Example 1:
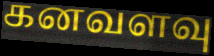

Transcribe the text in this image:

கனவளவு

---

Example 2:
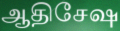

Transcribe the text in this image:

ஆதிசேஷ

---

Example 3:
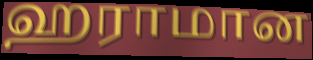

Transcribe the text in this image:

ஹராமான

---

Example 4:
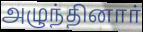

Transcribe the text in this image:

அழுந்தினார்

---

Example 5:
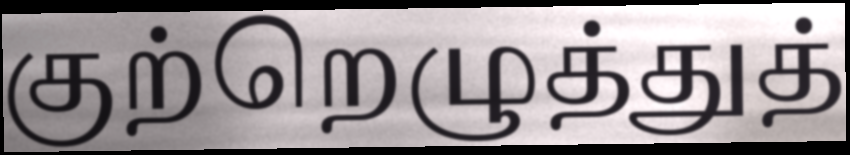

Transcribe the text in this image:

குற்றெழுத்துத்